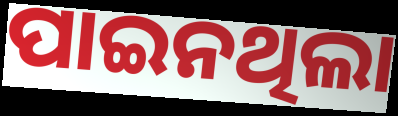
ପାଇନଥିଲା